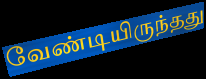
வேண்டியிருந்தது